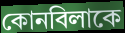
কোনবিলাকে